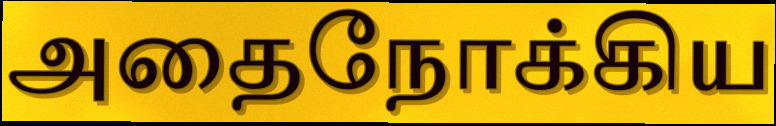
அதைநோக்கிய